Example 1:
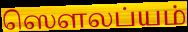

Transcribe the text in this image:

ஸௌலப்யம்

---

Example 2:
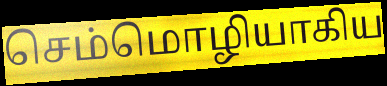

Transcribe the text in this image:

செம்மொழியாகிய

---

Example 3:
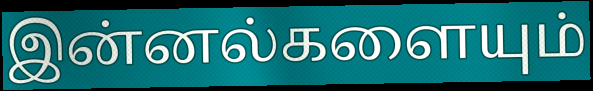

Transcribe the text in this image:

இன்னல்களையும்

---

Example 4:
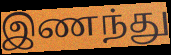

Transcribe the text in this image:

இணந்து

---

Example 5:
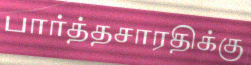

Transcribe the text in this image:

பார்த்தசாரதிக்கு